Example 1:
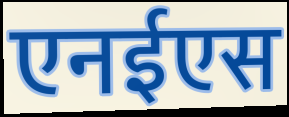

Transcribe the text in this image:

एनईएस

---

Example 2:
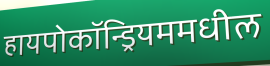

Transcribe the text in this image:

हायपोकॉन्ड्रियममधील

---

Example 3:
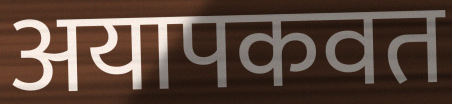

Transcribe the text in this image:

अयापकवत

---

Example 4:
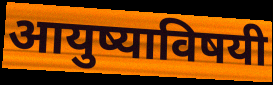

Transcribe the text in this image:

आयुष्याविषयी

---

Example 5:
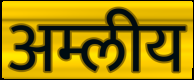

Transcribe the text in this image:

अम्‍लीय